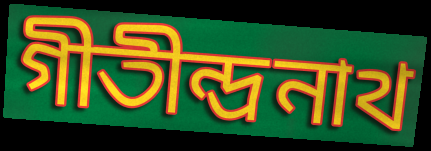
গীতীন্দ্রনাথ